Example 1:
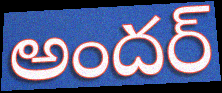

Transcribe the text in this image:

అందర్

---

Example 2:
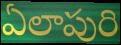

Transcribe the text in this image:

ఏలాపురి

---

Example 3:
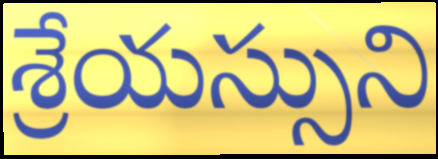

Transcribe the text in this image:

శ్రేయస్సుని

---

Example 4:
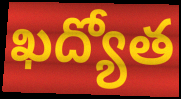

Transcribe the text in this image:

ఖద్యోత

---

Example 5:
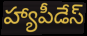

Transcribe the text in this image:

హ్యాపీడేస్